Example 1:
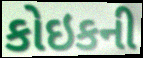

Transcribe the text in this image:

કોઇકની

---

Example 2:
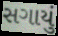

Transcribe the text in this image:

સગાયું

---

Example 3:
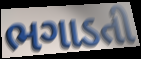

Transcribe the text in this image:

ભગાડતી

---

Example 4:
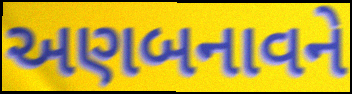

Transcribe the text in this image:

અણબનાવને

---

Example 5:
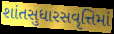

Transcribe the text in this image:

શાંતસુધારસવૃત્તિમાં